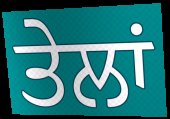
ਤੇਲਾਂ